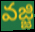
వజ్జి